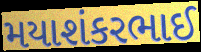
મયાશંકરભાઈ